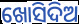
ଖୋସିଦିଅ